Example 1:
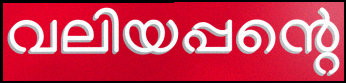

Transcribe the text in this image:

വലിയപ്പന്റെ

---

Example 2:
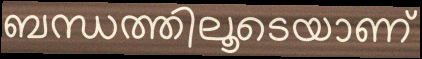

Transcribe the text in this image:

ബന്ധത്തിലൂടെയാണ്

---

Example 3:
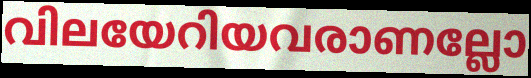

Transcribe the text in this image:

വിലയേറിയവരാണല്ലോ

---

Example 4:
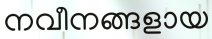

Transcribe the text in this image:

നവീനങ്ങളായ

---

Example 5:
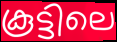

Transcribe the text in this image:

കൂട്ടിലെ